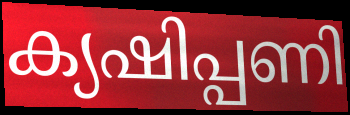
ക്യഷിപ്പണി